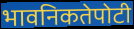
भावनिकतेपोटी